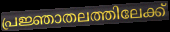
പ്രജ്ഞാതലത്തിലേക്ക്